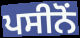
ਪਸੀਨੋਂ